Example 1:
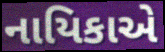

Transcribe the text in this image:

નાયિકાએ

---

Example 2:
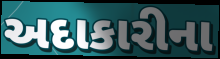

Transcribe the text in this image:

અદાકારીના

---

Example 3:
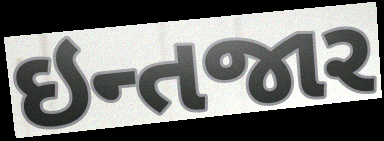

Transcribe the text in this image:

ઇન્તજાર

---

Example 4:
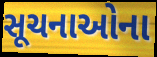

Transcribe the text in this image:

સૂચનાઓના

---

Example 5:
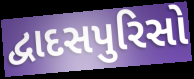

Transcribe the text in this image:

દ્વાદસપુરિસો